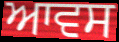
ਆਵਸ